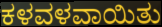
ಕಳವಳವಾಯಿತು